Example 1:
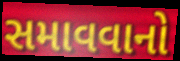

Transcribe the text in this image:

સમાવવાનો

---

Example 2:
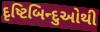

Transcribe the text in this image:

દૃષ્ટિબિન્દુઓથી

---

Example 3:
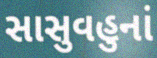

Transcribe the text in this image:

સાસુવહુનાં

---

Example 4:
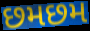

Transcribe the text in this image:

છમછમ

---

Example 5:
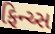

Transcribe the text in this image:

ફિન્ચ્સ